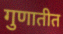
गुणातीत